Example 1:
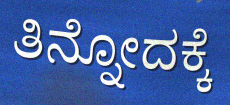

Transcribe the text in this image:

ತಿನ್ನೋದಕ್ಕೆ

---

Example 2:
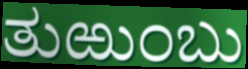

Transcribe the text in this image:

ತುಱುಂಬು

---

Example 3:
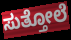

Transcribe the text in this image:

ಸುತ್ತೋಲೆ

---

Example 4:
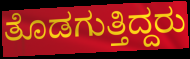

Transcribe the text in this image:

ತೊಡಗುತ್ತಿದ್ದರು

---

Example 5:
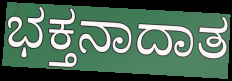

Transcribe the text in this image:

ಭಕ್ತನಾದಾತ